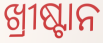
ଖ୍ରୀଷ୍ଟାନ